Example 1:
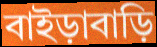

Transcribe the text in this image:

বাইড়াবাড়ি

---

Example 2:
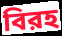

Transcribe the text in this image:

বিরহ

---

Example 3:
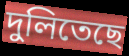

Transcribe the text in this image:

দুলিতেছে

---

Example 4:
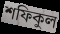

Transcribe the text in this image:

শফিকুল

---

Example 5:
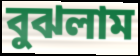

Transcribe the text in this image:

বুঝলাম